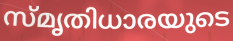
സ്മൃതിധാരയുടെ